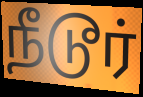
நீடூர்